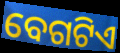
ବେଗଟିଏ